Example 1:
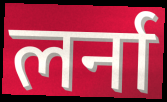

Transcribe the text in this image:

लर्ना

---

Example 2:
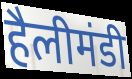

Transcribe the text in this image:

हैलीमंडी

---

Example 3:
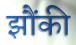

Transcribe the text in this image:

झौंकी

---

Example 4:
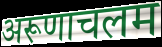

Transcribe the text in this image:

अरूणाचलम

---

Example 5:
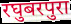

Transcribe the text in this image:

रघुबरपुरा